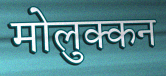
मोलुक्कन